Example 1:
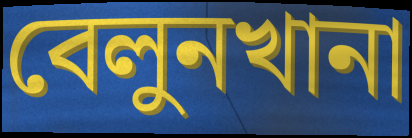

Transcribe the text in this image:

বেলুনখানা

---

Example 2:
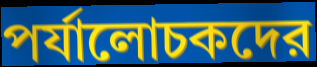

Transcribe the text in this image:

পর্যালোচকদের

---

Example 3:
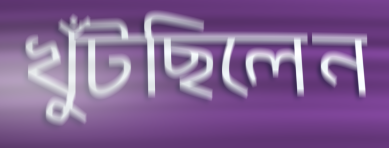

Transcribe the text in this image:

খুঁটছিলেন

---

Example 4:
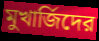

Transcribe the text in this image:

মুখার্জিদের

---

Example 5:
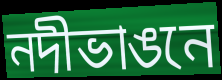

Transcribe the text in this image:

নদীভাঙনে